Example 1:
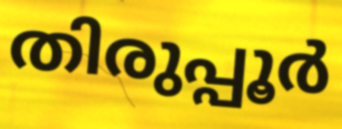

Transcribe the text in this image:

തിരുപ്പൂർ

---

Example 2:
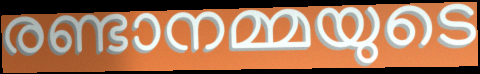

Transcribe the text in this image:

രണ്ടാനമ്മയുടെ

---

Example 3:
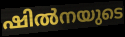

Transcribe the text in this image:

ഷിൽനയുടെ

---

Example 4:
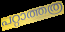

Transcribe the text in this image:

പറ്റാത്തത്ര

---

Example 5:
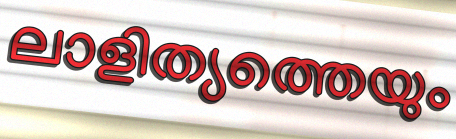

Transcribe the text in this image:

ലാളിത്യത്തെയും